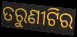
ତରୁଣୀଟିର